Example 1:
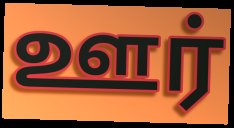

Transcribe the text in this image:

ஊர்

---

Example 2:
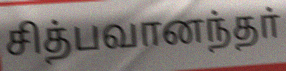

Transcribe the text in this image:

சித்பவானந்தர்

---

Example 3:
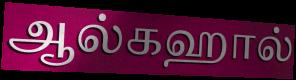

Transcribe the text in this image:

ஆல்கஹால்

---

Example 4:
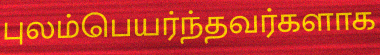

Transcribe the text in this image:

புலம்பெயர்ந்தவர்களாக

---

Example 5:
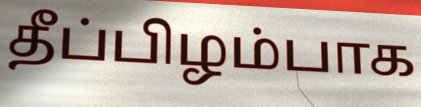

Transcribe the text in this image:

தீப்பிழம்பாக